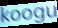
koogu